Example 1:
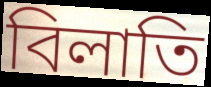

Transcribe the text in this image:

বিলাতি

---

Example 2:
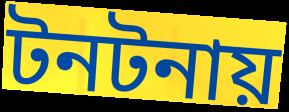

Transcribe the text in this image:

টনটনায়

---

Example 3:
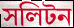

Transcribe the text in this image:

সলিটন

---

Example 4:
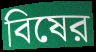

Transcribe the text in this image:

বিষের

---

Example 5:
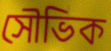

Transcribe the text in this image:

সৌভিক